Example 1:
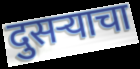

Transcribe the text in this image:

दुसऱ्याचा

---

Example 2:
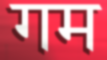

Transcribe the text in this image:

गम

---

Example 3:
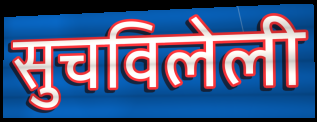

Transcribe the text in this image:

सुचविलेली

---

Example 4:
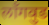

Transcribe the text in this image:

लाँगवुड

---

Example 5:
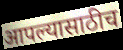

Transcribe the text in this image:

आपल्यासाठीच